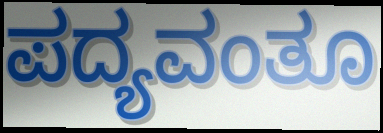
ಪದ್ಯವಂತೂ